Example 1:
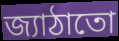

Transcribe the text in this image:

জ্যাঠাতো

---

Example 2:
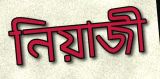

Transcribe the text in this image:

নিয়াজী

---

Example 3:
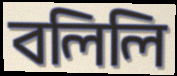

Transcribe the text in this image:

বলিলি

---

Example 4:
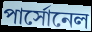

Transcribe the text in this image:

পার্সোনেল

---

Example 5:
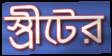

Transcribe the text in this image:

স্ত্রীটের